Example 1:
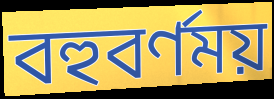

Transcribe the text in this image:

বহুবর্ণময়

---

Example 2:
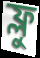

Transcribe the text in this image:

ফ্লু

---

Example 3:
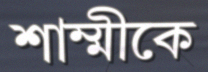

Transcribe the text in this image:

শাম্মীকে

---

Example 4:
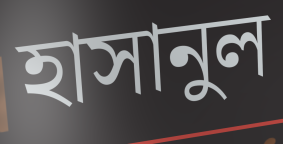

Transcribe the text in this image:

হাসানুল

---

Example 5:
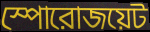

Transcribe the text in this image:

স্পোরোজয়েট